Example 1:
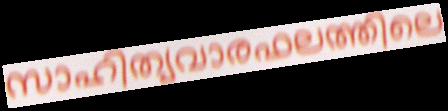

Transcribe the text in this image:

സാഹിത്യവാരഫലത്തിലെ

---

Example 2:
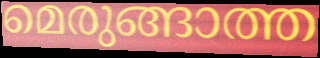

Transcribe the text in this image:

മെരുങ്ങാത്ത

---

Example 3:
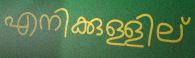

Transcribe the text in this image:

എനിക്കുള്ളില്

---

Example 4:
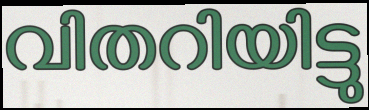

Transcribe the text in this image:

വിതറിയിട്ടു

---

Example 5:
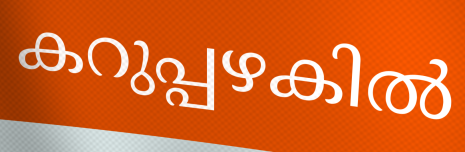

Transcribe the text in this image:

കറുപ്പഴകിൽ